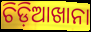
ଚିଡ଼ିଆଖାନା